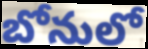
బోనులో